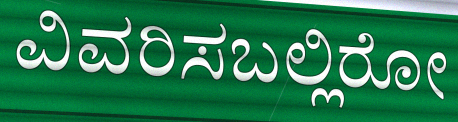
ವಿವರಿಸಬಲ್ಲಿರೋ